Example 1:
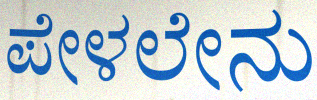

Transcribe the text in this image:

ಪೇಳಲೇನು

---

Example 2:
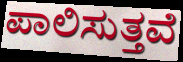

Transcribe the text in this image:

ಪಾಲಿಸುತ್ತವೆ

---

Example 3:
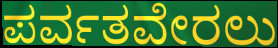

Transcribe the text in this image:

ಪರ್ವತವೇರಲು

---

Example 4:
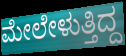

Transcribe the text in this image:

ಮೇಲೇಳುತ್ತಿದ್ದ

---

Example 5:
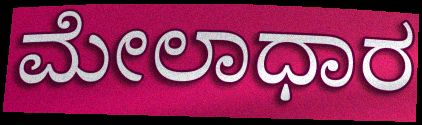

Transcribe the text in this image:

ಮೇಲಾಧಾರ